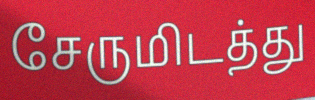
சேருமிடத்து